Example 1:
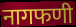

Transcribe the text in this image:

नागफणी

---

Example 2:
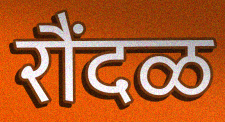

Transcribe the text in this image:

रौंदळ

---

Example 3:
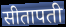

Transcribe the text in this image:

सीतापती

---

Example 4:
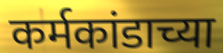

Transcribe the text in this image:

कर्मकांडाच्या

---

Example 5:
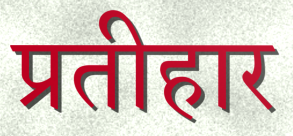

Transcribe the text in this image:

प्रतीहार